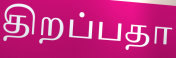
திறப்பதா